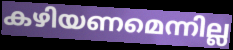
കഴിയണമെന്നില്ല